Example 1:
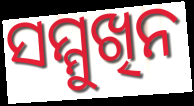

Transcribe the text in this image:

ସମ୍ମୁଖିନ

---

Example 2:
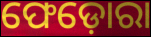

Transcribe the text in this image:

ଫେଡ଼ୋରା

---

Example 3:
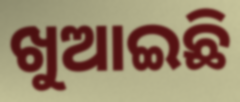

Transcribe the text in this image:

ଖୁଆଇଛି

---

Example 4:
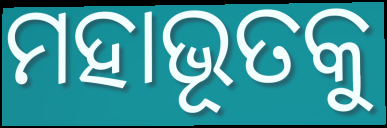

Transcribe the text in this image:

ମହାଭୂତକୁ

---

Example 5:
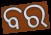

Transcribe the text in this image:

ବର